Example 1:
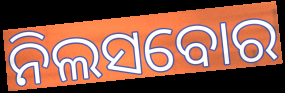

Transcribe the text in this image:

ନିଲସବୋର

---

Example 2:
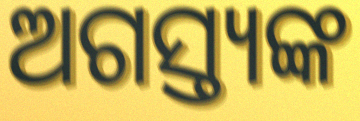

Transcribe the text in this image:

ଅଗସ୍ତ୍ୟଙ୍କ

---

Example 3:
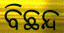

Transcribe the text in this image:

ବିଛନ୍ଦ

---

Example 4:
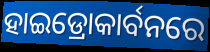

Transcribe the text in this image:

ହାଇଡ୍ରୋକାର୍ବନରେ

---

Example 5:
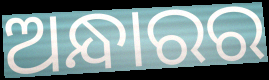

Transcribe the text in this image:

ଅନ୍ଧାରର